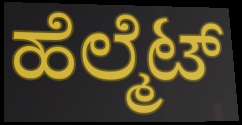
ಹೆಲ್ಮೆಟ್